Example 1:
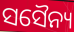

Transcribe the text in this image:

ସସୈନ୍ୟ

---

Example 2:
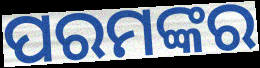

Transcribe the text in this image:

ପରମଙ୍କର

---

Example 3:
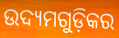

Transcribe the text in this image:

ଉଦ୍ୟମଗୁଡ଼ିକର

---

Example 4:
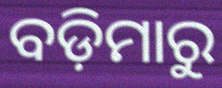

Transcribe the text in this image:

ବଡ଼ିମାରୁ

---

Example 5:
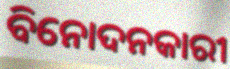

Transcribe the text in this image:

ବିନୋଦନକାରୀ